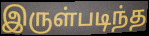
இருள்படிந்த